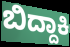
ಬಿದ್ದಾಕಿ